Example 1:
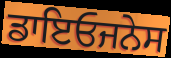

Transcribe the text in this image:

ਡਾਇਓਜਨੇਸ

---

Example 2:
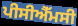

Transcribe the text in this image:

ਪੀਸੀਐੱਮਸੀ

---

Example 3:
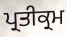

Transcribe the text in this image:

ਪ੍ਰਤੀਕ੍ਰਮ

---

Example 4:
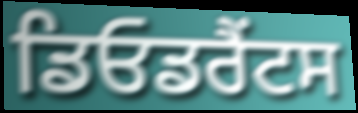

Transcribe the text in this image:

ਡਿਓਡਰੈਂਟਸ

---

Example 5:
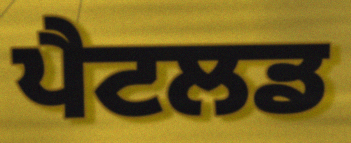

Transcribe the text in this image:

ਪੈਟਲਡ